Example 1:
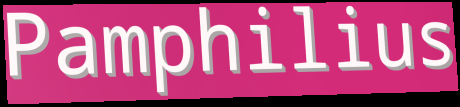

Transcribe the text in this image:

Pamphilius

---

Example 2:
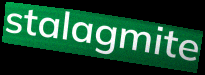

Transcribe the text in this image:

stalagmite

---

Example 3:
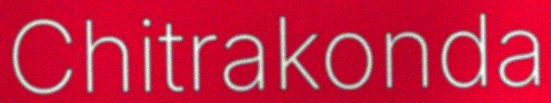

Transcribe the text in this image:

Chitrakonda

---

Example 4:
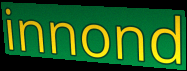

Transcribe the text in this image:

innond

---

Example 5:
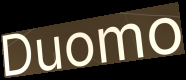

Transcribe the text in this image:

Duomo